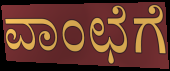
ವಾಂಛೆಗೆ